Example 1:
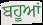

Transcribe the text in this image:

ਬਹੂਆਂ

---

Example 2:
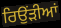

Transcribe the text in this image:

ਰਿਉਂੜੀਆਂ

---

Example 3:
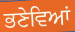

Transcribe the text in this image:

ਭਣੇਵਿਆਂ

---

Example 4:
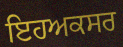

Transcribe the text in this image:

ਇਹਅਕਸਰ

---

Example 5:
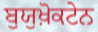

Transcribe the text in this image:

ਬੁਯੁਖ਼ੋਕਟੇਨ